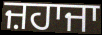
ਜ਼ਹਾਜਾ